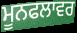
ਮੂਨਫਲਾਵਰ